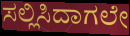
ಸಲ್ಲಿಸಿದಾಗಲೇ